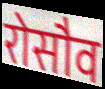
रोसौव